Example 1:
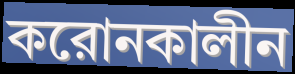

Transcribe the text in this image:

করোনকালীন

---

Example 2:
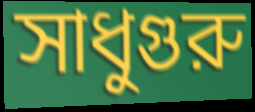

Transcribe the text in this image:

সাধুগুরু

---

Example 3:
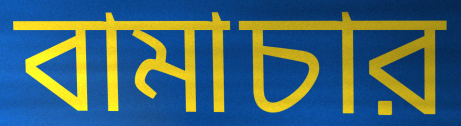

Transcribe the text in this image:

বামাচার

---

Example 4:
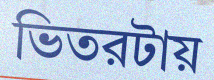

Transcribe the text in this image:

ভিতরটায়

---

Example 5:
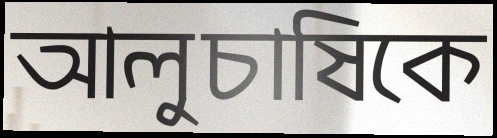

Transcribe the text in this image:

আলুচাষিকে